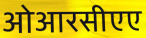
ओआरसीएए